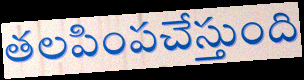
తలపింపచేస్తుంది